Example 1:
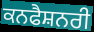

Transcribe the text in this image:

ਕਨਫੈਸ਼ਨਰੀ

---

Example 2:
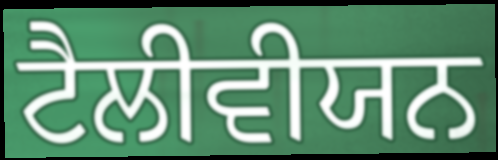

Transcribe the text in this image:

ਟੈਲੀਵੀਯਨ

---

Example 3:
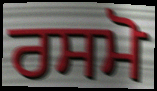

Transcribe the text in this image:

ਰਸਮੋ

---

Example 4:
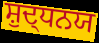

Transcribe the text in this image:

ਸ਼ੁਦ੍ਧਨਯ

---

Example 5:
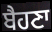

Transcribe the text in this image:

ਬੈਹਣਾ